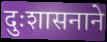
दुःशासनाने